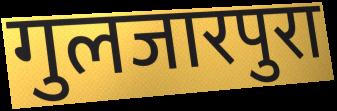
गुलजारपुरा